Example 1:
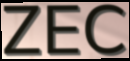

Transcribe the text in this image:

ZEC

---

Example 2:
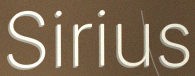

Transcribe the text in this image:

Sirius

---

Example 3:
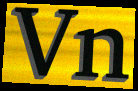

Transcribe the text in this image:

Vn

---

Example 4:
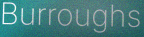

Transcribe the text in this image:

Burroughs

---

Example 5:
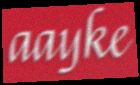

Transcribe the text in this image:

aayke